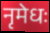
नृमेधः